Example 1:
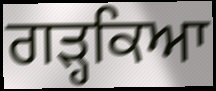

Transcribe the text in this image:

ਗੜ੍ਹਕਿਆ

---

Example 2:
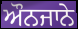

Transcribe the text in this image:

ਔਨਜਾਨੇ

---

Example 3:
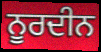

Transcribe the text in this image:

ਨੂਰਦੀਨ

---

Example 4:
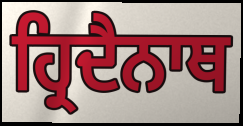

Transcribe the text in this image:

ਹ੍ਰਿਦੈਨਾਥ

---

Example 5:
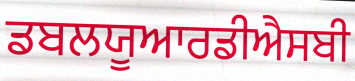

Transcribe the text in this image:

ਡਬਲਯੂਆਰਡੀਐਸਬੀ